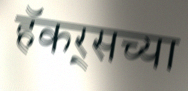
हॅकर्सच्या